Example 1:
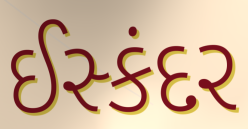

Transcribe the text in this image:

ઈસ્કંદર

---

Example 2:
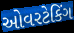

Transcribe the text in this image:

ઓવરટેકિંગ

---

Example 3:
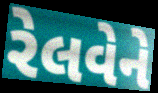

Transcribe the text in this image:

રેલવેને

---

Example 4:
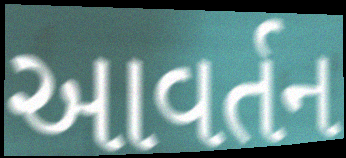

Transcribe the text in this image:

આવર્તન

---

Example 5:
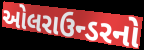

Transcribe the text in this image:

ઓલરાઉન્ડરનો